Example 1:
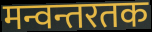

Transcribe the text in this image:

मन्वन्तरतक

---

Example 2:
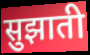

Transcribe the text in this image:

सुझाती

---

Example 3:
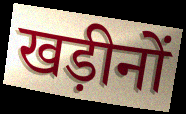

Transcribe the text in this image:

खड़ीनों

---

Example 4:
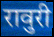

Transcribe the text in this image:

रावुरी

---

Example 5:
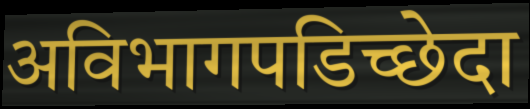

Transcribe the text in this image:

अविभागपडिच्छेदा